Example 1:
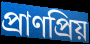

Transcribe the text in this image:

প্রাণপ্রিয়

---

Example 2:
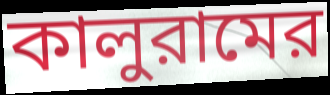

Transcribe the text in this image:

কালুরামের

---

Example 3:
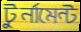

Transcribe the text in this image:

টুর্নামেন্ট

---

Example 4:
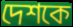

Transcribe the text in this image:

দেশকে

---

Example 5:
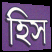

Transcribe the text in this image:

হিস